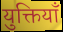
युक्तियाँ